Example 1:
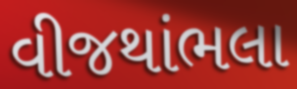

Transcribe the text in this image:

વીજથાંભલા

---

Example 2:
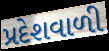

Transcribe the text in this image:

પ્રદેશવાળી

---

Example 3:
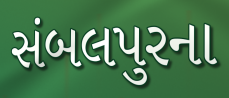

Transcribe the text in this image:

સંબલપુરના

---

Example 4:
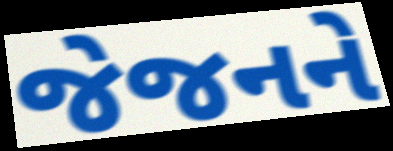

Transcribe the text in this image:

જેજનને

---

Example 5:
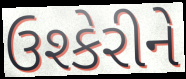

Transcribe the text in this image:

ઉશ્કેરીને